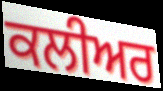
ਕਲੀਅਰ